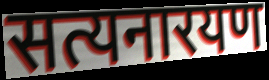
सत्यनारयण